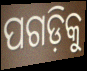
ପଗଡ଼ିକୁ